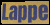
Lappe